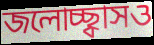
জলোচ্ছ্বাসও